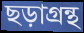
ছড়াগ্রন্থ